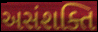
અસંશક્તિ